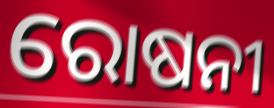
ରୋଷନୀ